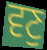
ਵਣੁ